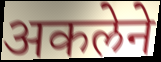
अकलेने